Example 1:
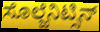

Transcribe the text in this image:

ಸೊಲ್ಜೆನಿಟ್ಸಿನ್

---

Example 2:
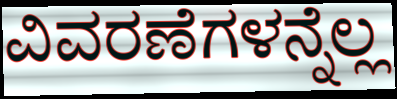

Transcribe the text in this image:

ವಿವರಣೆಗಳನ್ನೆಲ್ಲ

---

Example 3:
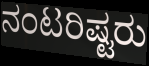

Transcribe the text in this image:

ನಂಟರಿಷ್ಟರು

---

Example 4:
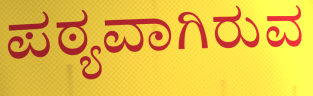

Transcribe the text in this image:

ಪಠ್ಯವಾಗಿರುವ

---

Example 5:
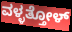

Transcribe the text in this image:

ವಳ್ಳತ್ತೋಳ್